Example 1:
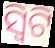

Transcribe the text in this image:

ସ୍ୱିଟି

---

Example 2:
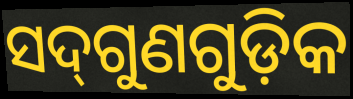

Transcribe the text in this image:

ସଦ୍‌ଗୁଣଗୁଡ଼ିକ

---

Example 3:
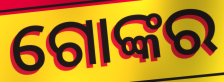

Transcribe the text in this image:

ଗୋଙ୍କର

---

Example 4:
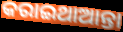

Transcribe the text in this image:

କରାଇଥାଆନ୍ତା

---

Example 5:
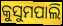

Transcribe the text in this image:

କୁସୁମପାଲି